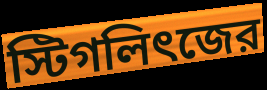
স্টিগলিৎজের